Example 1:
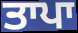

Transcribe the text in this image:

ਤਾਪਾ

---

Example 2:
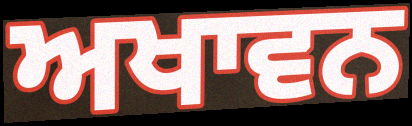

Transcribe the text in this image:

ਅਖਾਵਨ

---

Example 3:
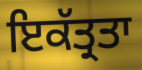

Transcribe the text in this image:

ਇਕੱਤ੍ਰਤਾ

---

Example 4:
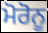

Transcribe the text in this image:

ਮੋਰੋਨੂ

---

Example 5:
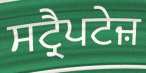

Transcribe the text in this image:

ਸਟ੍ਰੈਪਟੇਜ਼